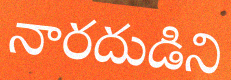
నారదుడిని